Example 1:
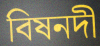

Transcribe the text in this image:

বিষনদী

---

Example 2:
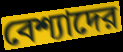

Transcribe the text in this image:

বেশ্যাদের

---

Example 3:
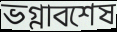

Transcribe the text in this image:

ভগ্নাবশেষ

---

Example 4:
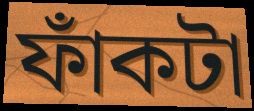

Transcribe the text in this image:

ফাঁকটা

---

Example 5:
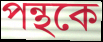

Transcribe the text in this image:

পন্থকে